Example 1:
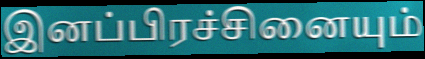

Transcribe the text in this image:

இனப்பிரச்சினையும்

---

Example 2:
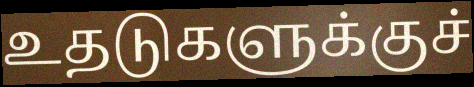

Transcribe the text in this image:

உதடுகளுக்குச்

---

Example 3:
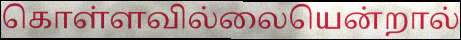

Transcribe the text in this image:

கொள்ளவில்லையென்றால்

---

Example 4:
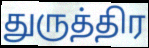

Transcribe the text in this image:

துருத்திர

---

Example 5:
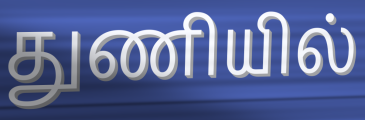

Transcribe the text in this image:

துணியில்